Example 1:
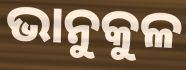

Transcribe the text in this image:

ଭାନୁକୁଳ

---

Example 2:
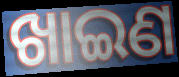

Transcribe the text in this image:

ଖାଇଣ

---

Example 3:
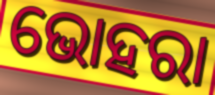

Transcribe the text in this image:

ଭୋହରା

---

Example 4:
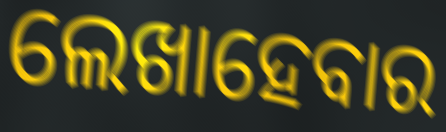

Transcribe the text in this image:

ଲେଖାହେବାର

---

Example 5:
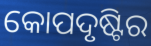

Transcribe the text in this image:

କୋପଦୃଷ୍ଟିର